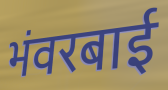
भंवरबाई